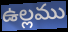
ఉల్లము